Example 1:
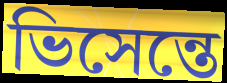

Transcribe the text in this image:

ভিসেন্তে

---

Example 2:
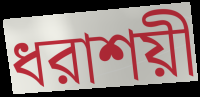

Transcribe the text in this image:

ধরাশয়ী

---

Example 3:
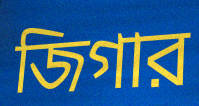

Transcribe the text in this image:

জিগার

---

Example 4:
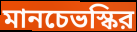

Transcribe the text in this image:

মানচেভস্কির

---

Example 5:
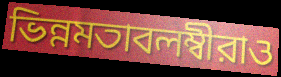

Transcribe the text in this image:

ভিন্নমতাবলম্বীরাও